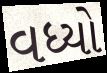
વધ્યો